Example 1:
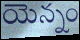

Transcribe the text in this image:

యెన్నం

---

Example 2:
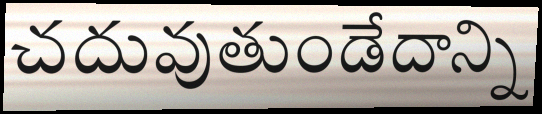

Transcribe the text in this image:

చదువుతుండేదాన్ని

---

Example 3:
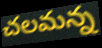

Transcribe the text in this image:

చలమన్న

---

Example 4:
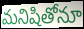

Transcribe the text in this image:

మనిషితోనూ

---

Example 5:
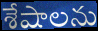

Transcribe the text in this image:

శేషాలను